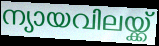
ന്യായവിലയ്ക്ക്